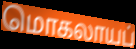
மொகலாயப்